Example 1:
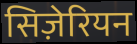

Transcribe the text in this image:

सिज़ेरियन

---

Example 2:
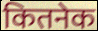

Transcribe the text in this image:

कितनेक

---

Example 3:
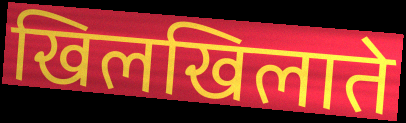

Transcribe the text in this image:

खिलखिलाते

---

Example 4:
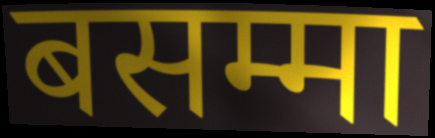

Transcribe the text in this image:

बसम्मा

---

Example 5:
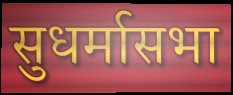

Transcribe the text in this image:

सुधर्मासभा